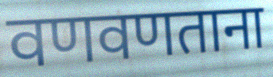
वणवणताना